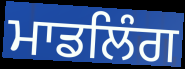
ਮਾਡਲਿੰਗ